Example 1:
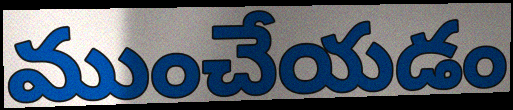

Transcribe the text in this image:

ముంచేయడం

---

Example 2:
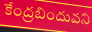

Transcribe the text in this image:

కేంద్రబిందువని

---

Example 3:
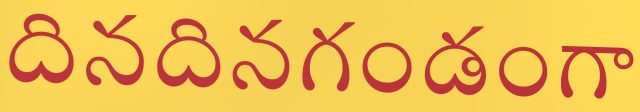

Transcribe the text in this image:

దినదినగండంగా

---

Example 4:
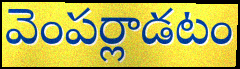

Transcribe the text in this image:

వెంపర్లాడటం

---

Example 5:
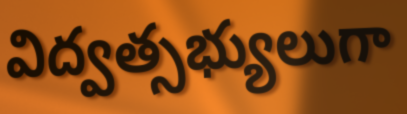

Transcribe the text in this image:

విద్వత్సభ్యులుగా